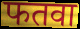
फतवा